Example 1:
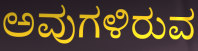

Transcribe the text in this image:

ಅವುಗಳಿರುವ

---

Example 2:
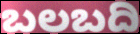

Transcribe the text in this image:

ಬಲಬದಿ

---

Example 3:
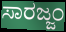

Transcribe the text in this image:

ಸಾರಜ್ಜಂ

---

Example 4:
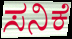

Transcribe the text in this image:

ಸನಿಕೆ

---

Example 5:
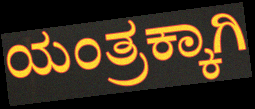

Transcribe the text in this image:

ಯಂತ್ರಕ್ಕಾಗಿ